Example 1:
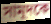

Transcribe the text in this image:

সামূদকে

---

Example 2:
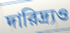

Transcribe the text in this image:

দারিদ্র্যও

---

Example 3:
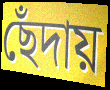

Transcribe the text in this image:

ছেঁদায়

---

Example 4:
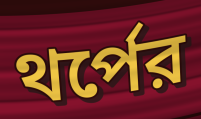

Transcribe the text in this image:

থর্পের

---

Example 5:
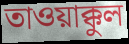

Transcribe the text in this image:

তাওয়াক্কুল